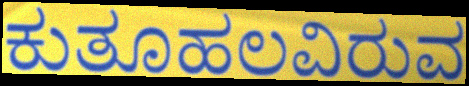
ಕುತೂಹಲವಿರುವ